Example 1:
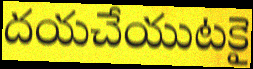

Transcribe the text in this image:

దయచేయుటకై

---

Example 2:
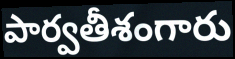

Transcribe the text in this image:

పార్వతీశంగారు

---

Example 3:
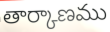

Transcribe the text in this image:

తార్కాణము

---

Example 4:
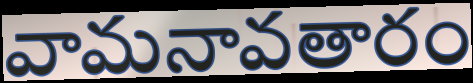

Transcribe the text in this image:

వామనావతారం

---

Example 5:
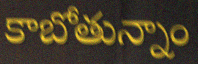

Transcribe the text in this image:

కాబోతున్నాం